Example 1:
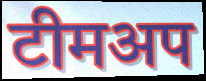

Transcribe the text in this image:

टीमअप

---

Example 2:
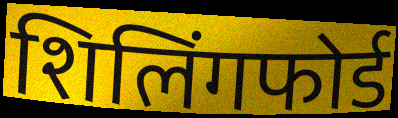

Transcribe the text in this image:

शिलिंगफोर्ड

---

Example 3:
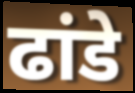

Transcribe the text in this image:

ढांडे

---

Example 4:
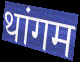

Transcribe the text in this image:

थांगम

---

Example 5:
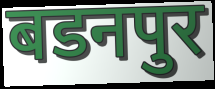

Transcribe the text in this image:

बडनपुर